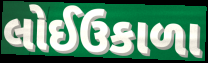
લોઈઉકાળા